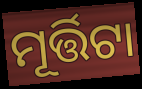
ମୂର୍ତ୍ତିଟା